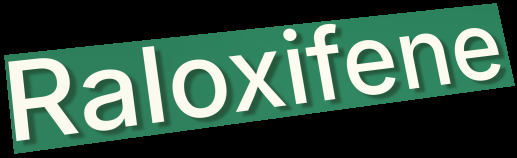
Raloxifene